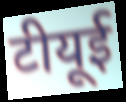
टीयूई